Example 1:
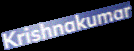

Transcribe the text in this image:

Krishnakumar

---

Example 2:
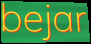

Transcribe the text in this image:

bejar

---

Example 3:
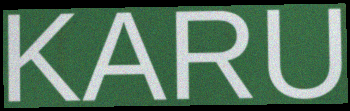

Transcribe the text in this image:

KARU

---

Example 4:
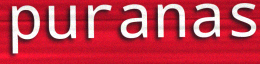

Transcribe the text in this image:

puranas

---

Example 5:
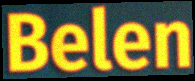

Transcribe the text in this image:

Belen